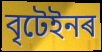
বৃটেইনৰ